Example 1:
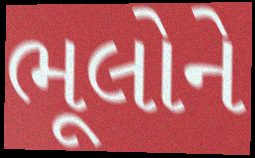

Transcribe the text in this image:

ભૂલોને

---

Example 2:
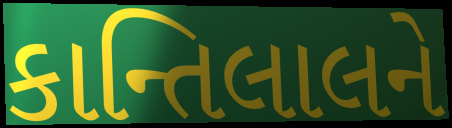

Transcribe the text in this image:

કાન્તિલાલને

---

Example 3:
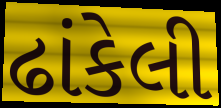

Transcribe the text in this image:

ઢાંકેલી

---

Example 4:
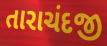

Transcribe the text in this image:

તારાચંદજી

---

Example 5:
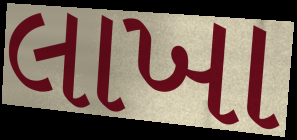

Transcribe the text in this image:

લાખા